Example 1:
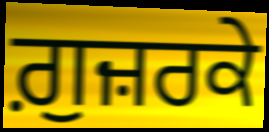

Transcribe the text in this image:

ਗ਼ੁਜ਼ਰਕੇ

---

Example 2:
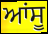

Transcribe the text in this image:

ਆਂਸੂ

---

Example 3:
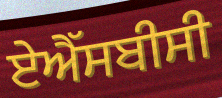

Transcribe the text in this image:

ਏਐੱਸਬੀਸੀ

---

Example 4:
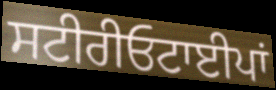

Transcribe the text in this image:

ਸਟੀਰੀਓਟਾਈਪਾਂ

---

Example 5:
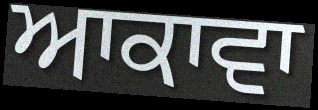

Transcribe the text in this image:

ਆਕਾਵਾ